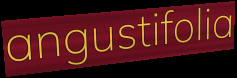
angustifolia